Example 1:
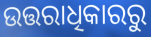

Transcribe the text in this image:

ଉତ୍ତରାଧିକାରରୁ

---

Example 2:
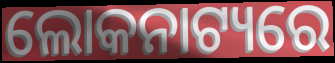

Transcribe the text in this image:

ଲୋକନାଟ୍ୟରେ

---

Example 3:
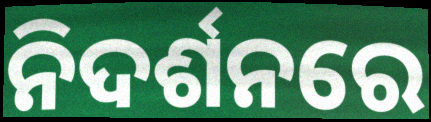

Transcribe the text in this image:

ନିଦର୍ଶନରେ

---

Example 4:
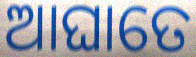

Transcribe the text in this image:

ଆଘାତେ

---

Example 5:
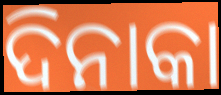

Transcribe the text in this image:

ଦିନାକା